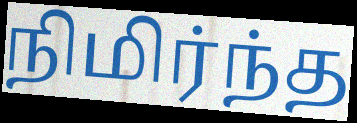
நிமிர்ந்த